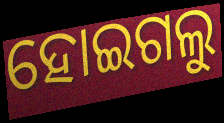
ହୋଇଗଲୁ